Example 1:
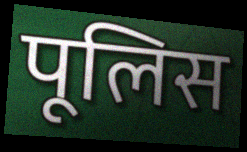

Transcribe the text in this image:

पूलिस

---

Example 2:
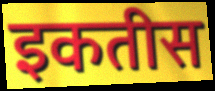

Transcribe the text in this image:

इकतीस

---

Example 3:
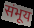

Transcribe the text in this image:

संभूय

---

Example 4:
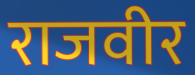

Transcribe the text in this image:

राजवीर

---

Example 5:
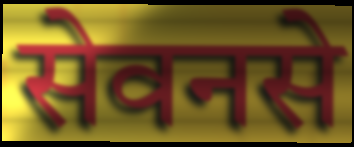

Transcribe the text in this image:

सेवनसे